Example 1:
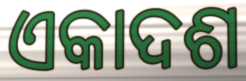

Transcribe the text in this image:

ଏକାଦଶ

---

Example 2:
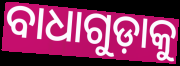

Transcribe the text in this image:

ବାଧାଗୁଡ଼ାକୁ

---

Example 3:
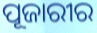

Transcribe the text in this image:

ପୂଜାରୀର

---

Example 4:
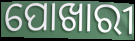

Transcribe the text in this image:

ପୋଖାରୀ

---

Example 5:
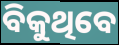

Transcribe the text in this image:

ବିକୁଥିବେ